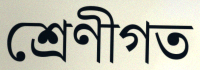
শ্রেণীগত